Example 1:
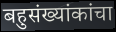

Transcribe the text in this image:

बहुसंख्यांकांचा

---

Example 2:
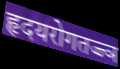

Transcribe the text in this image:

हृदयरोगतज्ज्ञ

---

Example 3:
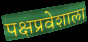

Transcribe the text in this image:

पक्षप्रवेशाला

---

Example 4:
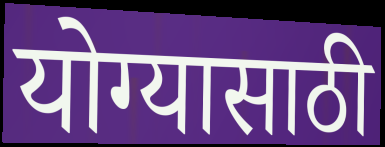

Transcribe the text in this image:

योग्यासाठी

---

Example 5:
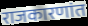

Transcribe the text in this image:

राजकारणांत